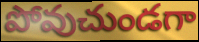
పోవుచుండగా